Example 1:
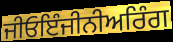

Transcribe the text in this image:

ਜੀਓਇੰਜੀਨੀਅਰਿੰਗ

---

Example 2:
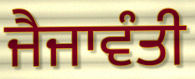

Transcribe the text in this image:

ਜੈਜਾਵੰਤੀ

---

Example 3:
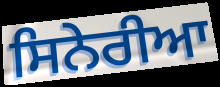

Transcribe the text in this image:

ਸਿਨੇਰੀਆ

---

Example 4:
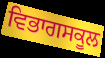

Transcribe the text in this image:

ਵਿਭਾਗਸਕੂਲ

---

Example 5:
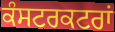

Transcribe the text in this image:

ਕੰਸਟਰਕਟਰਾਂ